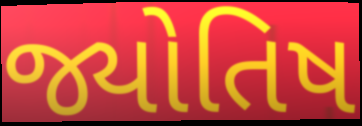
જ્યોતિષ